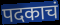
पदकाचं